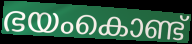
ഭയംകൊണ്ട്